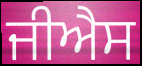
ਜੀਐਸ